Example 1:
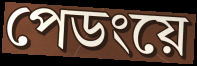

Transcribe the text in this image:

পেডংয়ে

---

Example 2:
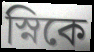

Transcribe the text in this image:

স্নিকে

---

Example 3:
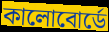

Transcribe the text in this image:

কালোবোর্ডে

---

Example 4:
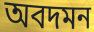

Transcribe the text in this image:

অবদমন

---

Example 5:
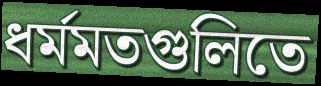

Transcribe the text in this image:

ধর্মমতগুলিতে